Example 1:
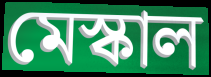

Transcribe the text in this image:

মেস্কাল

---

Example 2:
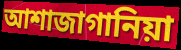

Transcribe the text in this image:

আশাজাগানিয়া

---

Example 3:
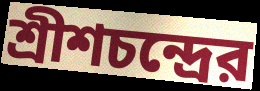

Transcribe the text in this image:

শ্রীশচন্দ্রের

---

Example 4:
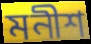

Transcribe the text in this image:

মনীশ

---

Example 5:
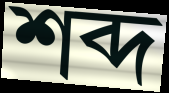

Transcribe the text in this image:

শব্দ